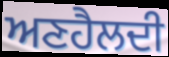
ਅਣਹੈਲਦੀ